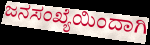
ಜನಸಂಖ್ಯೆಯಿಂದಾಗಿ